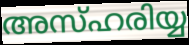
അസ്ഹരിയ്യ